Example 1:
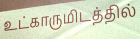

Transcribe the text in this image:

உட்காருமிடத்தில்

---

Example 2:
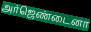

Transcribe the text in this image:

அர்ஜெண்டைனா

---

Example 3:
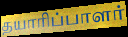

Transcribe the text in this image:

தயாரிப்பாளர்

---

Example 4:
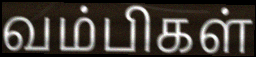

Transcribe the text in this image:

வம்பிகள்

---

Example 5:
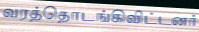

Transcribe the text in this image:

வரத்தொடங்கிவிட்டனர்